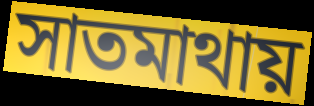
সাতমাথায়